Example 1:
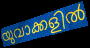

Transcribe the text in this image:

യുവാക്കളിൽ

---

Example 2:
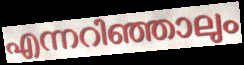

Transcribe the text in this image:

എന്നറിഞ്ഞാലും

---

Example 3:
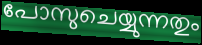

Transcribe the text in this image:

പോസുചെയ്യുന്നതും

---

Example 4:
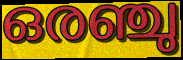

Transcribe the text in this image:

ഒരഞ്ചു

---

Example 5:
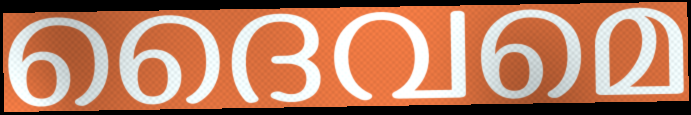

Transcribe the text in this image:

ദൈവമെ